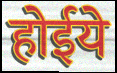
होईये